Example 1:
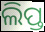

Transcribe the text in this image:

ଲିପ୍ତ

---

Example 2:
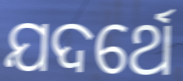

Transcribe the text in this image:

ଯଦର୍ଥେ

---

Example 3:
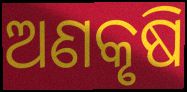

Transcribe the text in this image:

ଅଣକୃଷି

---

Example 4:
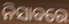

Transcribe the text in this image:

ନିସାବରେ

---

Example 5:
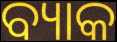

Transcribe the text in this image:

ବ୍ୟାକ